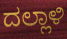
ದಲ್ಲಾಳಿ